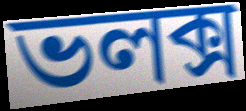
ভলক্স